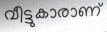
വീട്ടുകാരാണ്